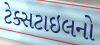
ટેક્સટાઇલનો